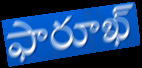
ఫారూఖ్